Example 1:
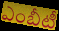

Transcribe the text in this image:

ఎంబీటీ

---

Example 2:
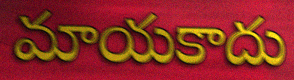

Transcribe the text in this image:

మాయకాదు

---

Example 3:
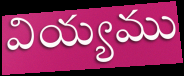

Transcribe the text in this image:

వియ్యము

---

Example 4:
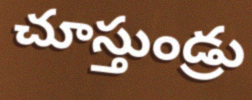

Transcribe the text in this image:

చూస్తుండ్రు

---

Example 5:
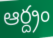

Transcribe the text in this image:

ఆర్ద్రం